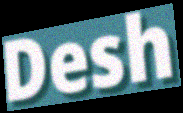
Desh